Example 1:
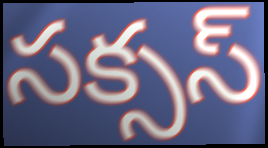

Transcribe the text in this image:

సక్సస్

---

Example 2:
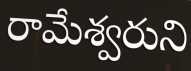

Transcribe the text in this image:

రామేశ్వరుని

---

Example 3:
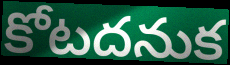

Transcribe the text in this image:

కోటదనుక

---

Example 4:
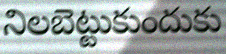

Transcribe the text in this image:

నిలబెట్టుకుందుకు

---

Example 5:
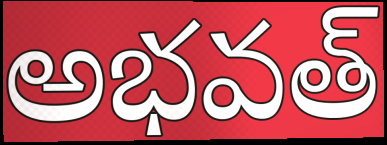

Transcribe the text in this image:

అభవత్